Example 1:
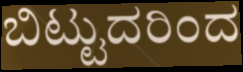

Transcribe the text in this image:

ಬಿಟ್ಟುದರಿಂದ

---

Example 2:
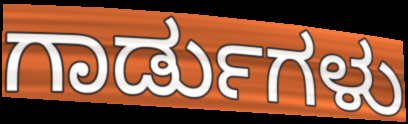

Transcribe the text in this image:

ಗಾರ್ಡುಗಳು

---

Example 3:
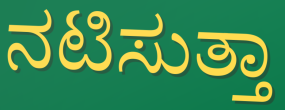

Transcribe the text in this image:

ನಟಿಸುತ್ತಾ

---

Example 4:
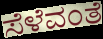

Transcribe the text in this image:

ಸೆಳೆವಂತೆ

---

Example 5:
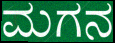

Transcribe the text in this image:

ಮಗನ